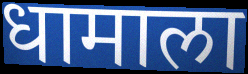
धामाला